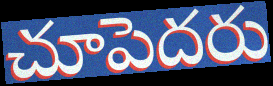
చూపెదరు